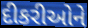
દીકરીઓને